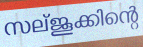
സല്ജൂക്കിന്റെ